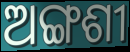
ଅଙ୍ଗଶୀ